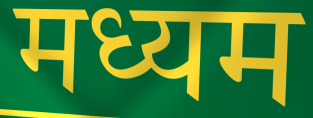
मध्यम